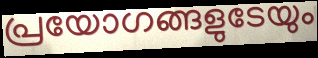
പ്രയോഗങ്ങളുടേയും